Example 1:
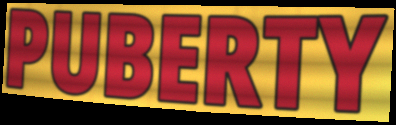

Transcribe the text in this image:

PUBERTY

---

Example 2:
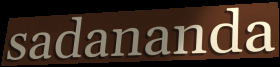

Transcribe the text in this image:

sadananda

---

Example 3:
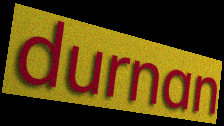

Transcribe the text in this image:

durnan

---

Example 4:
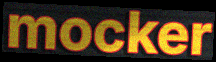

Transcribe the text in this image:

mocker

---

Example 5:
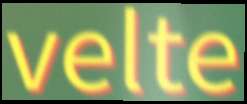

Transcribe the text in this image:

velte